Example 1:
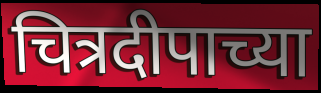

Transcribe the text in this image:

चित्रदीपाच्या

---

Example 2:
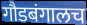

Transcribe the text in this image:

गौडबंगालच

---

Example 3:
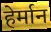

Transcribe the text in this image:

हेर्मान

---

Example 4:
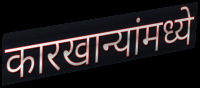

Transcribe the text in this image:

कारखान्यांमध्ये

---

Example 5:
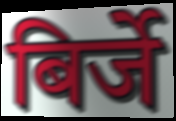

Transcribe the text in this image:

बिर्जे